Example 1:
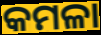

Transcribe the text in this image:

କମଳା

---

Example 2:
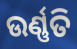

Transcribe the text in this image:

ଉର୍ଣ୍ଣତି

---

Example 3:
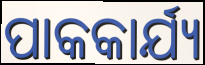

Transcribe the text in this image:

ପାକକାର୍ଯ୍ୟ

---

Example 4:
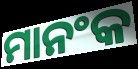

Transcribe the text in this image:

ମାନଂକ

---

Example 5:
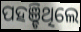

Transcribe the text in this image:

ପହଞ୍ଚିଥିଲେ